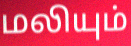
மலியும்